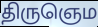
திருஞெம